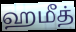
ஹமீத்